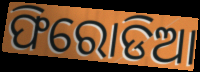
ଫିରୋଡିଆ